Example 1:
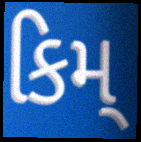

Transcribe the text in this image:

કિમ્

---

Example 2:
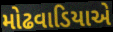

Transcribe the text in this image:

મોઢવાડિયાએ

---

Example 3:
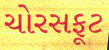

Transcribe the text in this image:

ચોરસફૂટ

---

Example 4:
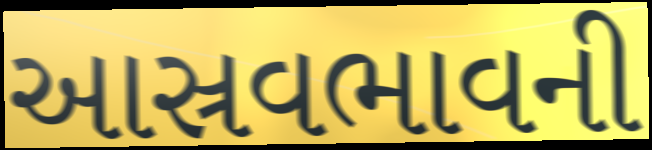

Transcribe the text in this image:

આસ્રવભાવની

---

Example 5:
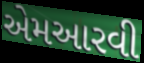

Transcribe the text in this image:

એમઆરવી